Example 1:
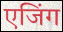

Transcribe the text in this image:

एजिंग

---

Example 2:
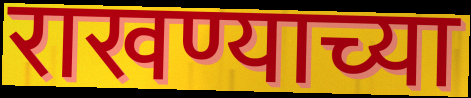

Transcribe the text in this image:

राखण्याच्या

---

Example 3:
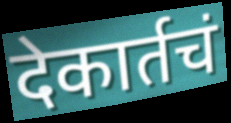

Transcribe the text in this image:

देकार्तचं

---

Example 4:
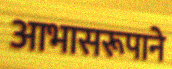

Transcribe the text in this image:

आभासरूपाने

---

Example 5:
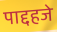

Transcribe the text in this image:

पाद्दहजे